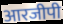
आरजीपी